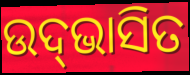
ଉଦ୍‌ଭାସିତ